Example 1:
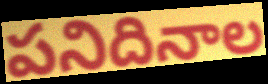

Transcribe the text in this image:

పనిదినాల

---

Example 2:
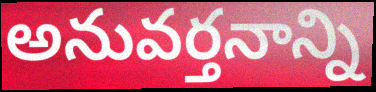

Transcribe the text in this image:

అనువర్తనాన్ని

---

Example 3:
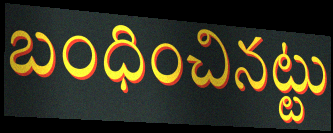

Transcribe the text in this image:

బంధించినట్టు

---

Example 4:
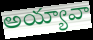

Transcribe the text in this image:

అయ్యావా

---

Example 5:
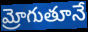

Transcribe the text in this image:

మ్రోగుతూనే